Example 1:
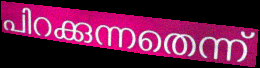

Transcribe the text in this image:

പിറക്കുന്നതെന്ന്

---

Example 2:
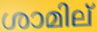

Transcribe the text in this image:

ശാമില്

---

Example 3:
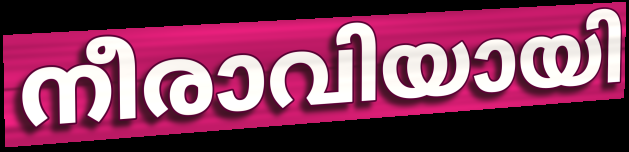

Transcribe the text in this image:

നീരാവിയായി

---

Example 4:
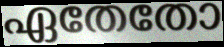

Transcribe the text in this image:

ഏതേതോ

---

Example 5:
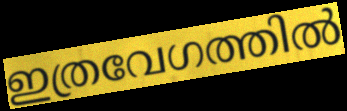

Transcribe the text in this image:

ഇത്രവേഗത്തിൽ